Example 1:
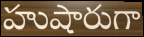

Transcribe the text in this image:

హుషారుగా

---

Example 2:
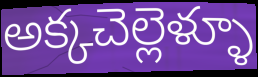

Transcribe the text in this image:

అక్కచెల్లెళ్ళూ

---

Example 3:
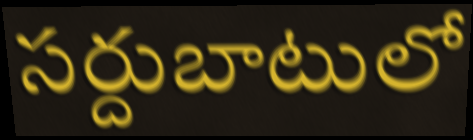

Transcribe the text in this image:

సర్దుబాటులో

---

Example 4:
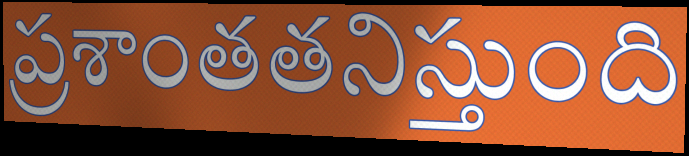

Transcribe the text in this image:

ప్రశాంతతనిస్తుంది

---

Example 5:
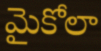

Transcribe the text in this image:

మైకోలా